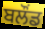
ਬਲੌਂਡ